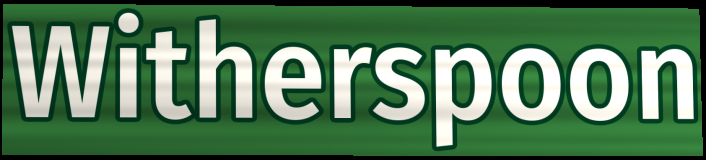
Witherspoon